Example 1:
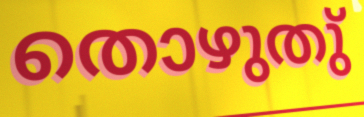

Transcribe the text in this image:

തൊഴുതു്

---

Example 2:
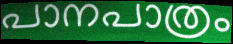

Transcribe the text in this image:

പാനപാത്രം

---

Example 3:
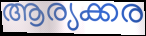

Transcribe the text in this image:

ആര്യക്കര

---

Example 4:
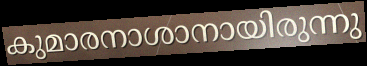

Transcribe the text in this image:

കുമാരനാശാനായിരുന്നു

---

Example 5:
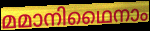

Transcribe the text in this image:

മമാനിഥൈനാം